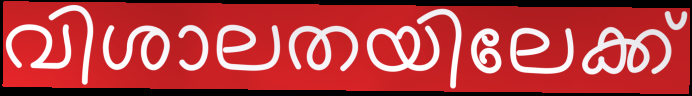
വിശാലതയിലേക്ക്